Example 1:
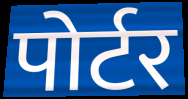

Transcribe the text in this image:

पोर्टर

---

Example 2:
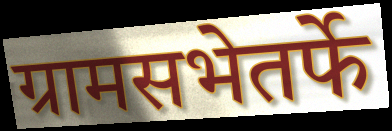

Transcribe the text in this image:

ग्रामसभेतर्फे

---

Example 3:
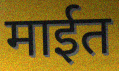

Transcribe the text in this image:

माईत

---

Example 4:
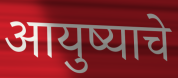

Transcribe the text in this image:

आयुष्याचे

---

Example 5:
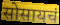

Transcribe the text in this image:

सोसायचं